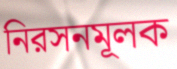
নিরসনমূলক